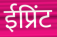
ईप्रिंट